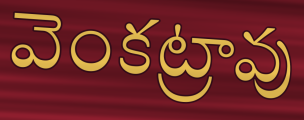
వెంకట్రావు